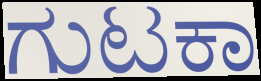
ಗುಟಕಾ